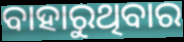
ବାହାରୁଥିବାର